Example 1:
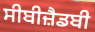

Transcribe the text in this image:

ਸੀਬੀਜ਼ੈਡਬੀ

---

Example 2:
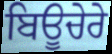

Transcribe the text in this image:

ਬਿਊਚੇਰੇ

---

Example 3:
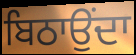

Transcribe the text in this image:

ਬਿਠਾਉਂਦਾ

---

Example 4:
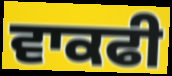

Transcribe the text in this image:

ਵਾਕਫੀ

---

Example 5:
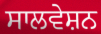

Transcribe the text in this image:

ਸਾਲਵੇਸ਼ਨ